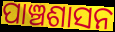
ପାଞ୍ଚଶାସନ